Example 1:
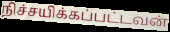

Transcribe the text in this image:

நிச்சயிக்கப்பட்டவன்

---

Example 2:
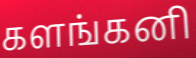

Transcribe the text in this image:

களங்கனி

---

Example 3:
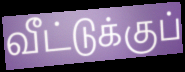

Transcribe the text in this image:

வீட்டுக்குப்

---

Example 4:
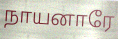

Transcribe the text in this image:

நாயனாரே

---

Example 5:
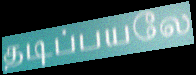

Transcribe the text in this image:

தடிப்பயலே